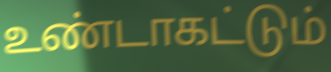
உண்டாகட்டும்